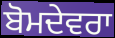
ਬੋਮਦੇਵਰਾ